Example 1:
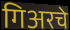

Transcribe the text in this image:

गिअरचे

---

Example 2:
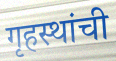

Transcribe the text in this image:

गृहस्थांची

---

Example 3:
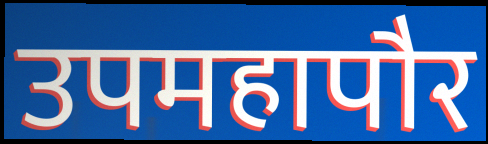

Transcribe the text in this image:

उपमहापौर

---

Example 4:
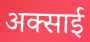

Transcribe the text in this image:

अक्साई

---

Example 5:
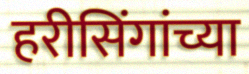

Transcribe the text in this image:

हरीसिंगांच्या